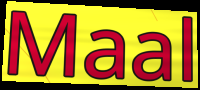
Maal